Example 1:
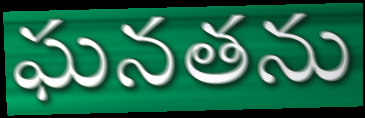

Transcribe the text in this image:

ఘనతను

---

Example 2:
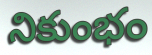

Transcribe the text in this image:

నికుంభం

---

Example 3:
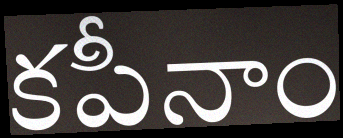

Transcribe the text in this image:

కపీనాం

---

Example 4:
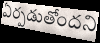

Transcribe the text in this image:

ఏర్పడుతోందని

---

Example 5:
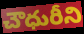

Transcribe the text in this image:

చౌధురీని